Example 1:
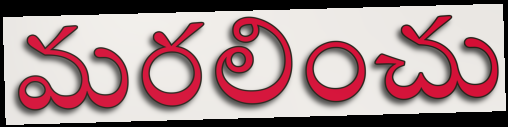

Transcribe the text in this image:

మరలించు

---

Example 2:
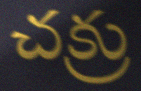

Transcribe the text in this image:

చక్రు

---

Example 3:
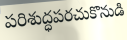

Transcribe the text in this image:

పరిశుద్ధపరచుకొనుడి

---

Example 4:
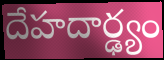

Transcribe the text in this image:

దేహదార్ఢ్యం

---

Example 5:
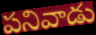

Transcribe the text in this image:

పనివాడు